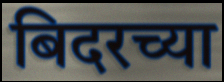
बिदरच्या